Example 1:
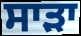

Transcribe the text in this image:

ਸਾੜਾ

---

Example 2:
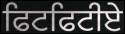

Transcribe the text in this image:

ਫਿਟਫਿਟੀਏ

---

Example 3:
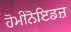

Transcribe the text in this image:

ਹੋਮੀਨੋਇਡਜ਼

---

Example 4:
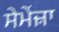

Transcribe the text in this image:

ਸੇਮੇਂਜ਼ਾ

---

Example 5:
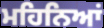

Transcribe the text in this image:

ਮਹਿਨਿਆਂ